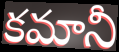
కమానీ